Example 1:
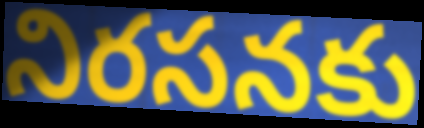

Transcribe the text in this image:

నిరసనకు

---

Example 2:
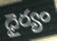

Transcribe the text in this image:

ధైర్యం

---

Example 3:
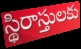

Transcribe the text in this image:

స్థిరాస్తులకు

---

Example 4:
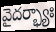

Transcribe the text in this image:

వైదర్భ్యాః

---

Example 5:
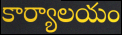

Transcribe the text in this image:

కార్యాలయం